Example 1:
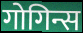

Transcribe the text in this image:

गोगिन्स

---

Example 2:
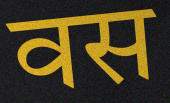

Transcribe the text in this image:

वस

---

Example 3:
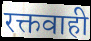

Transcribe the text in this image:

रक्तवाही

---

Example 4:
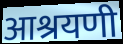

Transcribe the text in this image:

आश्रयणी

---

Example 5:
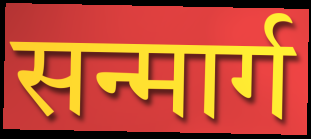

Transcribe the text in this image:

सन्‍मार्ग